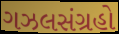
ગઝલસંગ્રહો